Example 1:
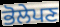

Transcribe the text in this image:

ਭੋਲੇਪਣ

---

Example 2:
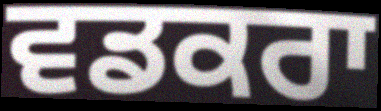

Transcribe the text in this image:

ਵਡਕਰਾ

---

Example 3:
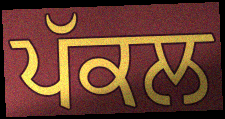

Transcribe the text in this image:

ਪੱਕਲ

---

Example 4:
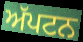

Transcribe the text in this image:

ਅੱਪਟਨ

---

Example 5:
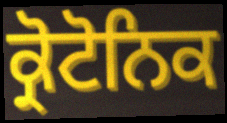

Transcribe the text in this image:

ਕ੍ਰੋਟੋਨਿਕ